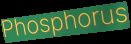
Phosphorus